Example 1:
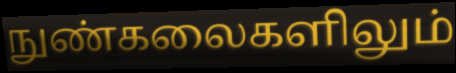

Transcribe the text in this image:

நுண்கலைகளிலும்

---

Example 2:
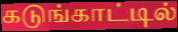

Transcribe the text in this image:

கடுங்காட்டில்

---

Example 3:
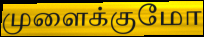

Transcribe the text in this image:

முளைக்குமோ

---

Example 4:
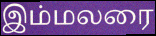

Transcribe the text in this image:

இம்மலரை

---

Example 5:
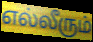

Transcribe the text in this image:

எல்லீரும்